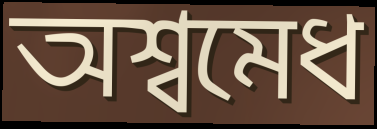
অশ্বমেধ